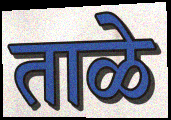
ताळे